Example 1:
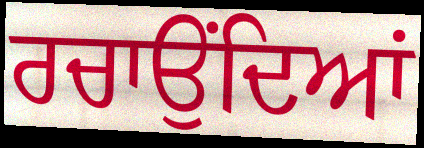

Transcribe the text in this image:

ਰਚਾਉਂਦਿਆਂ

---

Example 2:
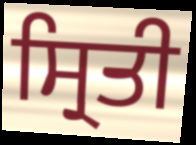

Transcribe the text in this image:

ਸ੍ਰਿਤੀ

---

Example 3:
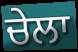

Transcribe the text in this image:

ਚੇਲਾ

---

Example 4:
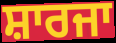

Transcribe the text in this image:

ਸ਼ਾਰਜਾ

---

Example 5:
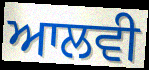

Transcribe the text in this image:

ਆਲਵੀ